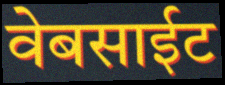
वेबसाईट